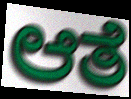
ಆತೆ